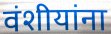
वंशीयांना